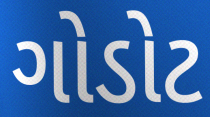
ગોડોટ